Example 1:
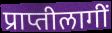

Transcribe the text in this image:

प्राप्तीलागीं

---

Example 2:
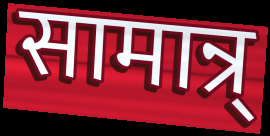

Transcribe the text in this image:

सामान्र्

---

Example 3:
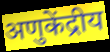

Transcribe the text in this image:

अणुकेंद्रीय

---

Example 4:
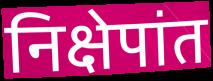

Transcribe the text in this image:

निक्षेपांत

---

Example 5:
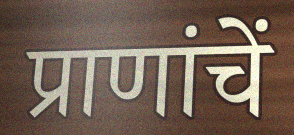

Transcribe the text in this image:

प्राणांचें